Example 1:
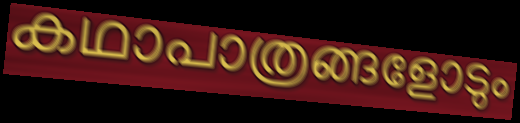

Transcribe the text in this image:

കഥാപാത്രങ്ങളോടും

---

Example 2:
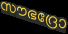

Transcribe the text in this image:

സൗഭദ്രോ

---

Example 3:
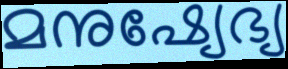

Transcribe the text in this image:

മനുഷ്യേഭ്യ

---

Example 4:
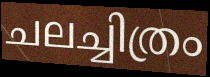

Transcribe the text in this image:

ചലച്ചിത്രം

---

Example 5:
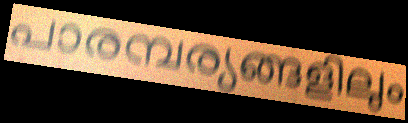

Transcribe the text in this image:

പാരമ്പര്യങ്ങളിലും